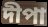
দীপা